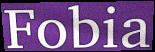
Fobia